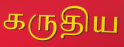
கருதிய